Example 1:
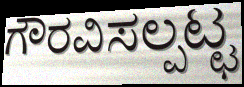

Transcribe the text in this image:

ಗೌರವಿಸಲ್ಪಟ್ಟ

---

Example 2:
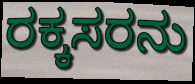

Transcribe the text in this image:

ರಕ್ಕಸರನು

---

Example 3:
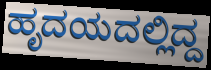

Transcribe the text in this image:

ಹೃದಯದಲ್ಲಿದ್ದ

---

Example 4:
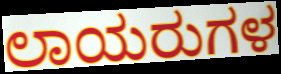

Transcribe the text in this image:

ಲಾಯರುಗಳ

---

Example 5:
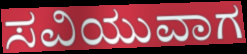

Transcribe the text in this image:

ಸವಿಯುವಾಗ